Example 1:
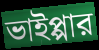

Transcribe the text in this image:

ভাইপ্পার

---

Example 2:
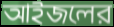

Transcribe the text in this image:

আইজলের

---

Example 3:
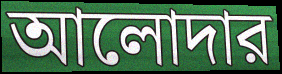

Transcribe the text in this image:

আলোদার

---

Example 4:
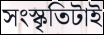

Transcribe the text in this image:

সংস্কৃতিটাই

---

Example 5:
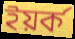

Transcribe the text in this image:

ইয়র্ক